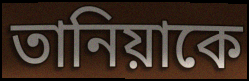
তানিয়াকে